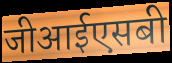
जीआईएसबी